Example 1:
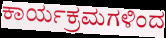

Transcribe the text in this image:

ಕಾರ್ಯಕ್ರಮಗಳಿಂದ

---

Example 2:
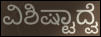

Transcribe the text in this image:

ವಿಶಿಷ್ಟಾದ್ವೆ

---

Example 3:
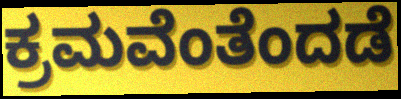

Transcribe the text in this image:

ಕ್ರಮವೆಂತೆಂದಡೆ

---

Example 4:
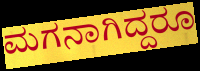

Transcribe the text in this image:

ಮಗನಾಗಿದ್ದರೂ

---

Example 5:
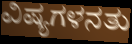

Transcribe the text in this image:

ವಿಷ್ಯಗಳನತು